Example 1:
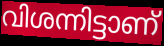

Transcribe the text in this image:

വിശന്നിട്ടാണ്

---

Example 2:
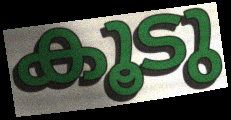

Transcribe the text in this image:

കൂടു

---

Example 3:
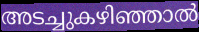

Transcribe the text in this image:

അടച്ചുകഴിഞ്ഞാൽ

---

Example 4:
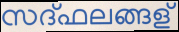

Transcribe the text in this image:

സദ്ഫലങ്ങള്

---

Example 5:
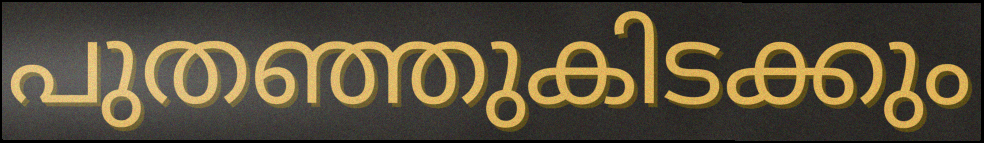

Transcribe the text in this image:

പുതഞ്ഞുകിടക്കും